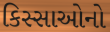
કિસ્સાઓનો